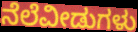
ನೆಲೆವೀಡುಗಳು